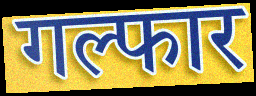
गल्फार